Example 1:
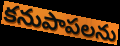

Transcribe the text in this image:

కనుపాపలను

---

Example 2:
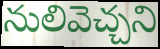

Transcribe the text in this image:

నులివెచ్చని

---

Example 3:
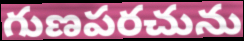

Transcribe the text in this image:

గుణపరచును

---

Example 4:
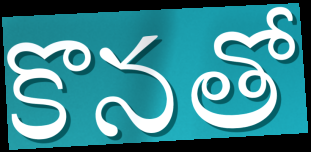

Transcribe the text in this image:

కొనతో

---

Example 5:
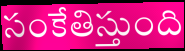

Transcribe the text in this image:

సంకేతిస్తుంది